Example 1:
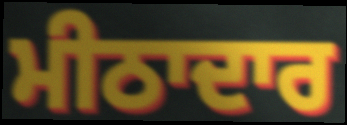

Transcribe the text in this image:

ਮੀਠਾਦਾਰ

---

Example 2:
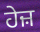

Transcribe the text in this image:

ਹੇਜ਼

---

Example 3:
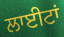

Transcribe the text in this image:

ਲਾਈਟਾਂ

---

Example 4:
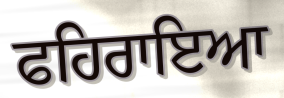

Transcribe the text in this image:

ਫਹਿਰਾਇਆ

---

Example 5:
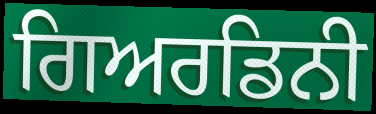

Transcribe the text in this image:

ਗਿਅਰਡਿਨੀ